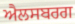
ਐਲਸਬਰਗ